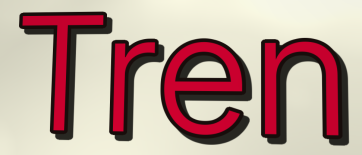
Tren